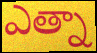
ఎత్నా